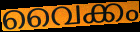
വൈക്കം